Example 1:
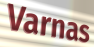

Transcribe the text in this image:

Varnas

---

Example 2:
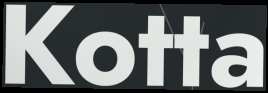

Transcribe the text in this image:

Kotta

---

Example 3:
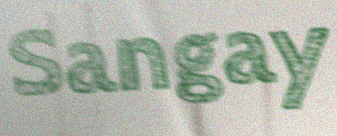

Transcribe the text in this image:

Sangay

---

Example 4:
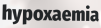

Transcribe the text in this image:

hypoxaemia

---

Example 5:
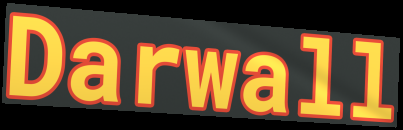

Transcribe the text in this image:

Darwall